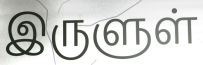
இருளுள்